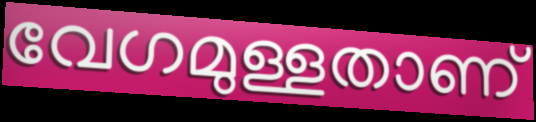
വേഗമുള്ളതാണ്